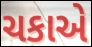
ચકાએ